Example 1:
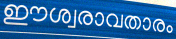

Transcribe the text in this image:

ഈശ്വരാവതാരം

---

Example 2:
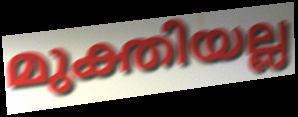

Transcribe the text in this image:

മുക്തിയല്ല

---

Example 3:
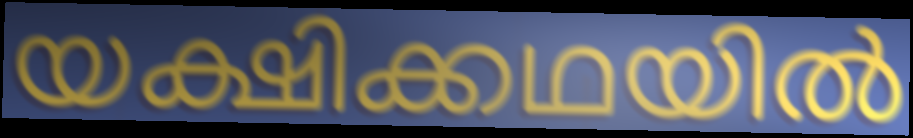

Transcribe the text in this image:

യക്ഷിക്കഥയിൽ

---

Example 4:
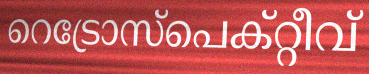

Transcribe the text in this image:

റെട്രോസ്പെക്റ്റീവ്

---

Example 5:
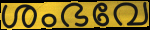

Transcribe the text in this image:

ശംഭവേ